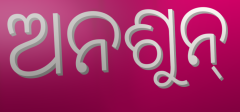
ଅନଶୁନ୍